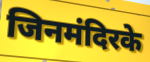
जिनमंदिरके